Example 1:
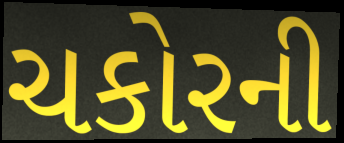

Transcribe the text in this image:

ચકોરની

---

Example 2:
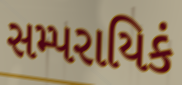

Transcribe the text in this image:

સમ્પરાયિકં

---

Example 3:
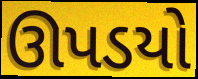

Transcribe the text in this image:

ઊપડયો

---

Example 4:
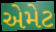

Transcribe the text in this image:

એમેટ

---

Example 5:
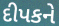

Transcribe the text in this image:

દીપકને